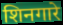
शिनगारे